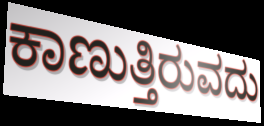
ಕಾಣುತ್ತಿರುವದು